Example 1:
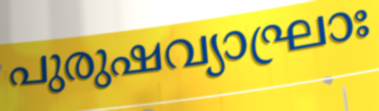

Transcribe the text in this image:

പുരുഷവ്യാഘ്രാഃ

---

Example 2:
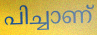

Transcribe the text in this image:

പിച്ചാണ്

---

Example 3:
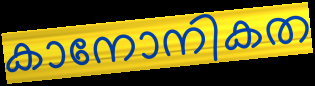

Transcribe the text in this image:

കാനോനികത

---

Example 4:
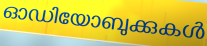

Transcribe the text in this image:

ഓഡിയോബുക്കുകൾ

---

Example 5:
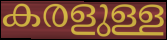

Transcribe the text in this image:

കരളുള്ള